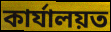
কাৰ্যালয়ত